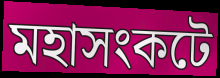
মহাসংকটে